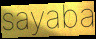
sayaba